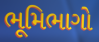
ભૂમિભાગો